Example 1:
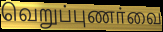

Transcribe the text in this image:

வெறுப்புணர்வை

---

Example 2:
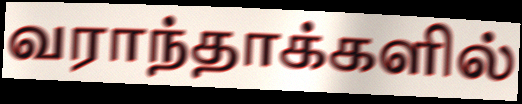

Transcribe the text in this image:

வராந்தாக்களில்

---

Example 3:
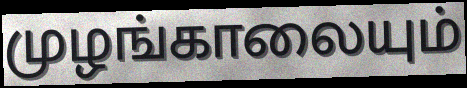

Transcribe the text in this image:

முழங்காலையும்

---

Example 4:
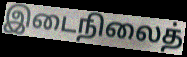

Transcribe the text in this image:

இடைநிலைத்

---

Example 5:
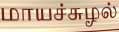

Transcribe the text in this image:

மாயச்சுழல்